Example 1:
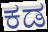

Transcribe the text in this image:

ಕಡ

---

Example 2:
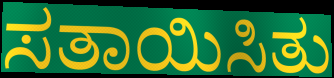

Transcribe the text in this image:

ಸತಾಯಿಸಿತು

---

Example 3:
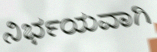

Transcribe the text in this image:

ನಿರ್ಭಯವಾಗಿ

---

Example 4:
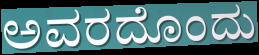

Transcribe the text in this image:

ಅವರದೊಂದು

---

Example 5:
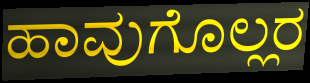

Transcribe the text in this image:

ಹಾವುಗೊಲ್ಲರ